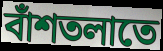
বাঁশতলাতে